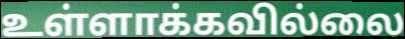
உள்ளாக்கவில்லை